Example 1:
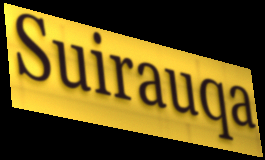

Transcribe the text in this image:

Suirauqa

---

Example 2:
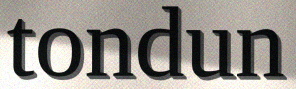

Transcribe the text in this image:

tondun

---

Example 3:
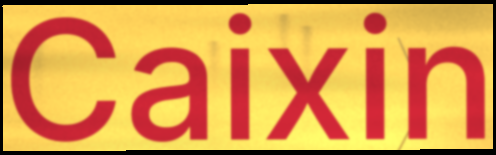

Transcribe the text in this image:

Caixin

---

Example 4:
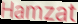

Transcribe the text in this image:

Hamzat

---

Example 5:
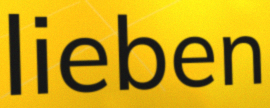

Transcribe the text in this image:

lieben